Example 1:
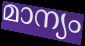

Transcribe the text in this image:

മാന്യം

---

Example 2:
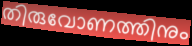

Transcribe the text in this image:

തിരുവോണത്തിനും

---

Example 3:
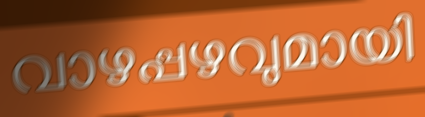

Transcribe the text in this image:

വാഴപ്പഴവുമായി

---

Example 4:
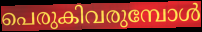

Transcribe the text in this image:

പെരുകിവരുമ്പോൾ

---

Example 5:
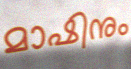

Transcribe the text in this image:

മാഷിനും